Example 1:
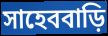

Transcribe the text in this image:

সাহেববাড়ি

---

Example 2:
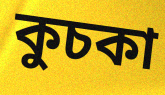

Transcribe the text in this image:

কুচকা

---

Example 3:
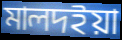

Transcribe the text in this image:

মালদইয়া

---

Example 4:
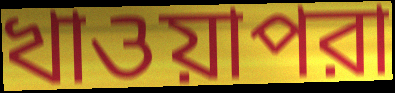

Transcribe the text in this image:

খাওয়াপরা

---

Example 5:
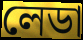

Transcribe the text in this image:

লেডা